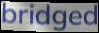
bridged